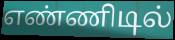
எண்ணிடில்